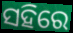
ସହିରେ